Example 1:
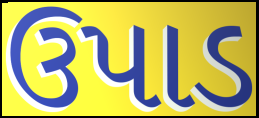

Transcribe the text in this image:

ઉપાડ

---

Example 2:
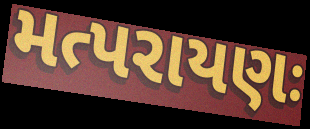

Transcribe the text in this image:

મત્પરાયણઃ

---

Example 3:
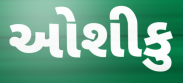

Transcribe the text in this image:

ઓશીકુ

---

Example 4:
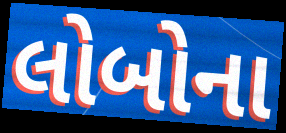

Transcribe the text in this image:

લોબોના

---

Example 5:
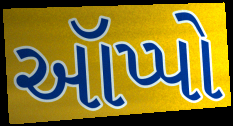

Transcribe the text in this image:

ઑપ્પો